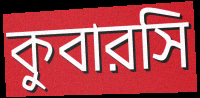
কুবারসি